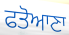
ਫਤੋਆਣਾ